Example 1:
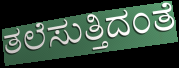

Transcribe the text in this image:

ತಲೆಸುತ್ತಿದಂತೆ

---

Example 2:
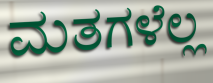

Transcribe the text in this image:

ಮತಗಳೆಲ್ಲ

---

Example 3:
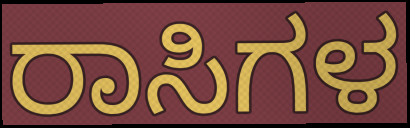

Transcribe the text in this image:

ರಾಸಿಗಳ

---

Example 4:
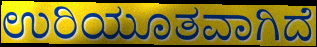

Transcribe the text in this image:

ಉರಿಯೂತವಾಗಿದೆ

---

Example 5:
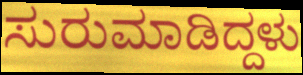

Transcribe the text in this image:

ಸುರುಮಾಡಿದ್ದಳು